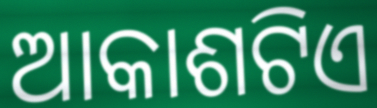
ଆକାଶଟିଏ